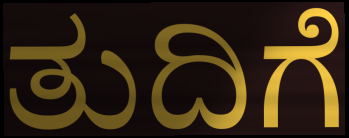
ತುದಿಗೆ